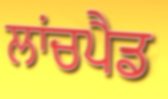
ਲਾਂਚਪੈਡ